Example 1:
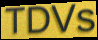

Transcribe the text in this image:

TDVs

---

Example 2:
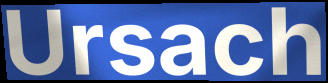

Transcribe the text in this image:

Ursach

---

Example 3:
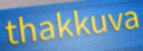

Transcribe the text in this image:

thakkuva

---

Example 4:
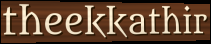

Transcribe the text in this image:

theekkathir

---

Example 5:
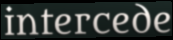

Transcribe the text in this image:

intercede